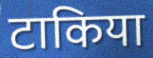
टाकिया